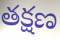
తక్షణ